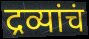
द्रव्यांचं